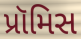
પ્રૉમિસ